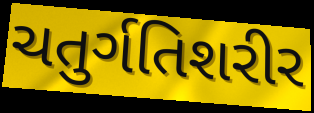
ચતુર્ગતિશરીર